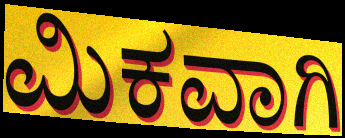
ಮಿಕವಾಗಿ